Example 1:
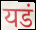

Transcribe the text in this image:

यडं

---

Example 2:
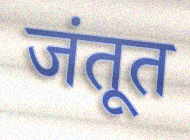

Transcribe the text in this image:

जंतूत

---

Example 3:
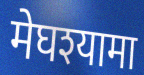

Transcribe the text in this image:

मेघश्यामा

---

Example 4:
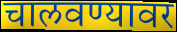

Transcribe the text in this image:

चालवण्यावर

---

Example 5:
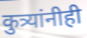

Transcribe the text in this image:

कुत्र्यांनीही